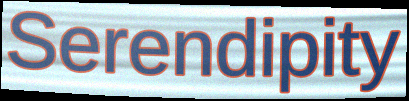
Serendipity